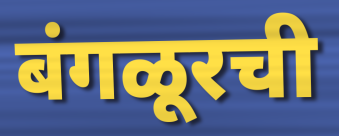
बंगळूरची